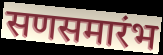
सणसमारंभ